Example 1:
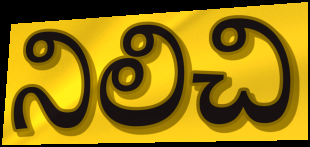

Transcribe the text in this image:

నిలిచి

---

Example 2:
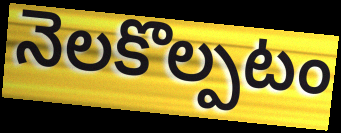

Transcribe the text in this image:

నెలకొల్పటం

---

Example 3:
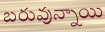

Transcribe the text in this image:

బరువున్నాయి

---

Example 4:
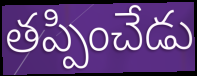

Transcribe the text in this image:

తప్పించేడు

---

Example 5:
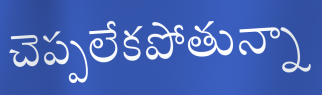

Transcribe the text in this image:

చెప్పలేకపోతున్నా